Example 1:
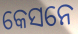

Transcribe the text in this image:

କେସନେ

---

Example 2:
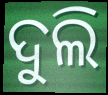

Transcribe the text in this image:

ଦୁଲି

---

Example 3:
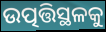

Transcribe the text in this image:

ଉତ୍ପତ୍ତିସ୍ଥଳକୁ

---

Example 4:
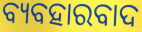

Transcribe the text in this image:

ବ୍ୟବହାରବାଦ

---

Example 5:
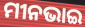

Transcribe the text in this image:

ମୀନଭାଇ